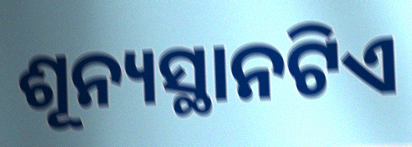
ଶୂନ୍ୟସ୍ଥାନଟିଏ